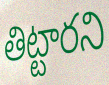
తిట్టారని